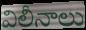
విలీనాలు